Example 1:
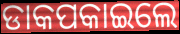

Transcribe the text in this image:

ଡାକପକାଇଲେ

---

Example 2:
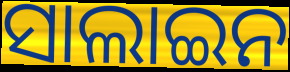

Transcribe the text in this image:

ସାଲାଇନ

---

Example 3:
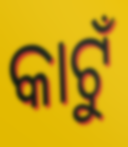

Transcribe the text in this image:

କାଟୁଁ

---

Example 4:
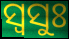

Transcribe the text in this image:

ସ୍ଵସୁଃ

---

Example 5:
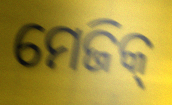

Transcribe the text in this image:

ମେଜିକ୍